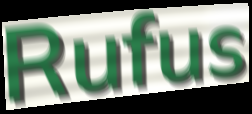
Rufus